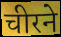
चीरने